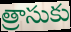
త్రాసుకు